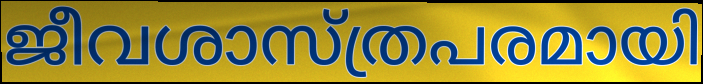
ജീവശാസ്ത്രപരമായി